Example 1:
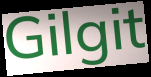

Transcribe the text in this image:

Gilgit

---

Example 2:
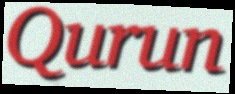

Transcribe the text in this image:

Qurun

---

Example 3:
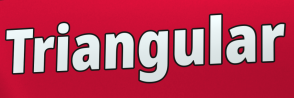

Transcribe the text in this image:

Triangular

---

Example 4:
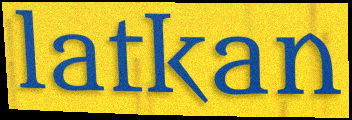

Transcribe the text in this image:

latkan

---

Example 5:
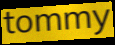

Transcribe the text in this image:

tommy